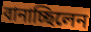
বানাচ্ছিলেন